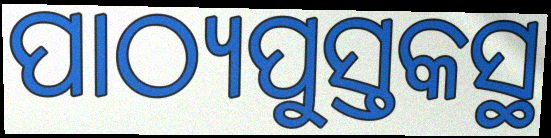
ପାଠ୍ୟପୁସ୍ତକସ୍ଥ